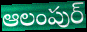
ఆలంపుర్